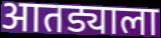
आतड्याला